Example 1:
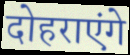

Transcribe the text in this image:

दोहराएंगे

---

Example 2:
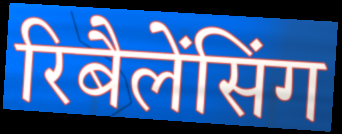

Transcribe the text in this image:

रिबैलेंसिंग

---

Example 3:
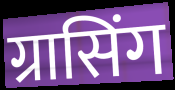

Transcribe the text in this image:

ग्रासिंग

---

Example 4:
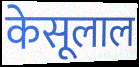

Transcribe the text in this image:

केसूलाल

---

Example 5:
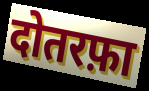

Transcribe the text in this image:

दोतरफ़ा